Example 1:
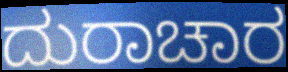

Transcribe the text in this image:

ದುರಾಚಾರ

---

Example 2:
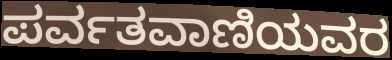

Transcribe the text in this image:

ಪರ್ವತವಾಣಿಯವರ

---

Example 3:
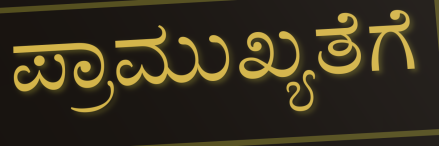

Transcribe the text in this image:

ಪ್ರಾಮುಖ್ಯತೆಗೆ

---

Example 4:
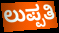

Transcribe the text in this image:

ಲುಪ್ಪತಿ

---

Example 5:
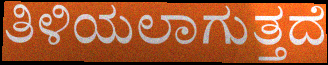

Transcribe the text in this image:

ತಿಳಿಯಲಾಗುತ್ತದೆ